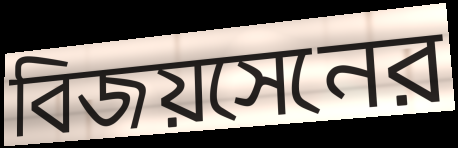
বিজয়সেনের